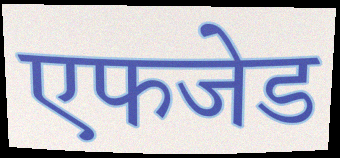
एफजेड